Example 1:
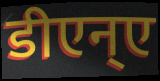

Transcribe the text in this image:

डीएन्ए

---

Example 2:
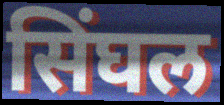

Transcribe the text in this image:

सिंघल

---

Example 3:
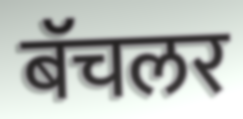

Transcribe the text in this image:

बॅचलर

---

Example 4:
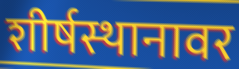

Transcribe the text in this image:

शीर्षस्थानावर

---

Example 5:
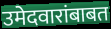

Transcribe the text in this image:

उमेदवारांबाबत